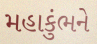
મહાકુંભને